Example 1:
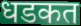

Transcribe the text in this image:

धडकत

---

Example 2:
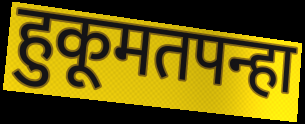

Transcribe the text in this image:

हुकूमतपन्हा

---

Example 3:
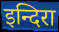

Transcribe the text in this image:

इन्दिरा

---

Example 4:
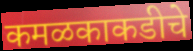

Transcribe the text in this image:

कमळकाकडीचे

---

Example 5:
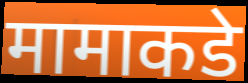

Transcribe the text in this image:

मामाकडे